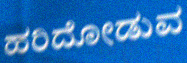
ಹರಿದೋಡುವ